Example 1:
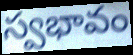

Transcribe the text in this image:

స్వభావం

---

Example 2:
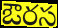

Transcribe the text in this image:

ఔరస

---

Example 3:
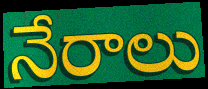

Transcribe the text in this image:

నేరాలు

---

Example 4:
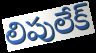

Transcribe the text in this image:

లిపులేక్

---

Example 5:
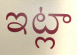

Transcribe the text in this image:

ఇట్లా